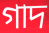
গাদ